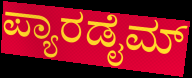
ಪ್ಯಾರಡೈಮ್